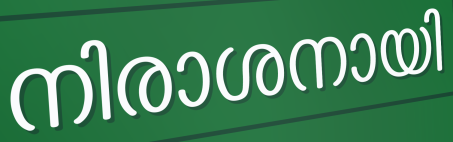
നിരാശനായി